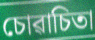
চোৱাচিতা